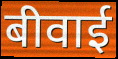
बीवाई